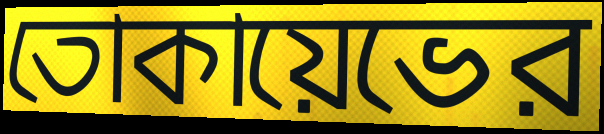
তোকায়েভের